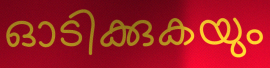
ഓടിക്കുകയും